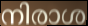
നിരാശ